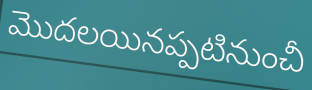
మొదలయినప్పటినుంచీ